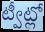
ట్వీట్లో